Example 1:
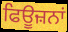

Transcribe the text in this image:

ਫਿਊਜ਼ਨਾਂ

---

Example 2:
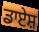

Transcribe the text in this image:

ਡਾਏਸ਼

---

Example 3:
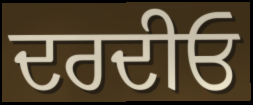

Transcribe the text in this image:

ਦਰਦੀਓ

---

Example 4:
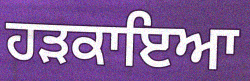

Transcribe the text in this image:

ਹੜਕਾਇਆ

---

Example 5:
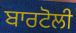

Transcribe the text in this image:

ਬਾਰਟੋਲੀ